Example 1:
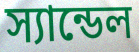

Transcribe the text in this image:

স্যান্ডেল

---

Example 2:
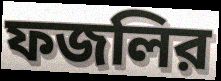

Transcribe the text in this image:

ফজলির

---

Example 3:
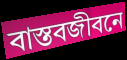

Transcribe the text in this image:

বাস্তবজীবনে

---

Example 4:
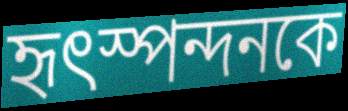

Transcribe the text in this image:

হৃৎস্পন্দনকে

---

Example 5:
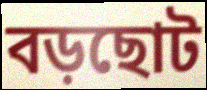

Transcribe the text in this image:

বড়ছোট